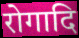
रोगादि